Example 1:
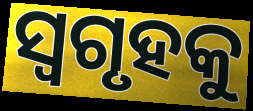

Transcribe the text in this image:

ସ୍ୱଗୃହକୁ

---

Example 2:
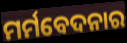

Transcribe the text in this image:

ମର୍ମବେଦନାର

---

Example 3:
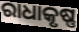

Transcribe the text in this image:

ରାଧାକୃଷ୍ଣ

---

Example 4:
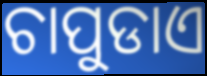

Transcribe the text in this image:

ଚାପୁଡାଏ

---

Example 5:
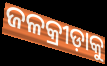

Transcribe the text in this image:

ଜଳକ୍ରୀଡ଼ାକୁ